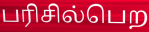
பரிசில்பெற